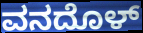
ವನದೊಳ್